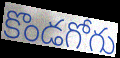
కొండగోగు